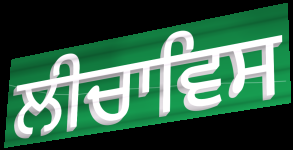
ਲੀਚਾਵਿਸ